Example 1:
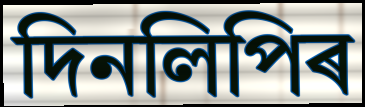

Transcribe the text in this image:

দিনলিপিৰ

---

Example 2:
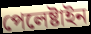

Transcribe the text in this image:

পেলেষ্টাইন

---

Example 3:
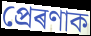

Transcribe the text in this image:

প্ৰেৰণাক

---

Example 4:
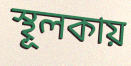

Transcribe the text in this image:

স্থূলকায়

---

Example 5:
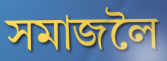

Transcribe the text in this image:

সমাজলৈ